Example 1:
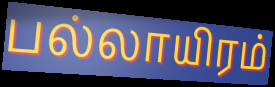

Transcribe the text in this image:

பல்லாயிரம்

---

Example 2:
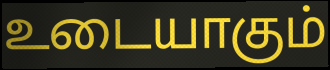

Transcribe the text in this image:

உடையாகும்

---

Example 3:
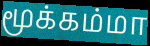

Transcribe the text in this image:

மூக்கம்மா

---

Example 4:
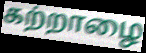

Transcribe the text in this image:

கற்றாழை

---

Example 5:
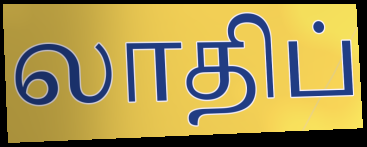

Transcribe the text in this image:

லாதிப்